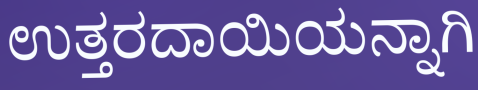
ಉತ್ತರದಾಯಿಯನ್ನಾಗಿ